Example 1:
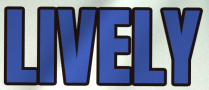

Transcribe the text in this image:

LIVELY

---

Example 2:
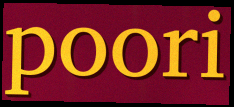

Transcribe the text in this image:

poori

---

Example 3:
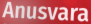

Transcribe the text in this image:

Anusvara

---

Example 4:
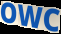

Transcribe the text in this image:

OWC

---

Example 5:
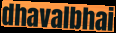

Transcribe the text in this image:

dhavalbhai